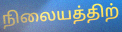
நிலையத்திற்